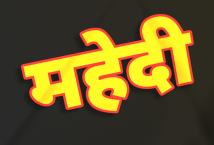
महेदी